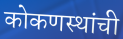
कोकणस्थांची